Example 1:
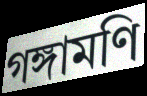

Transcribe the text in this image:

গঙ্গামণি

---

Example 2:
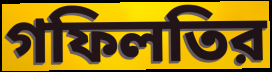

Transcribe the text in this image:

গফিলতির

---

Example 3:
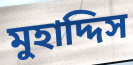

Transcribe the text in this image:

মুহাদ্দিস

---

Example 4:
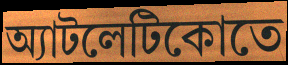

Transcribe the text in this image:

অ্যাটলেটিকোতে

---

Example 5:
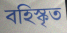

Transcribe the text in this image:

বহিস্কৃত